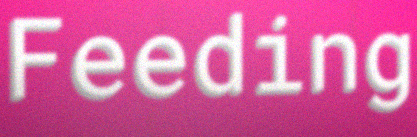
Feeding